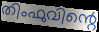
തിംഫുവിന്റെ